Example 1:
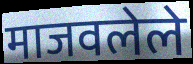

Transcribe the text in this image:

माजवलेले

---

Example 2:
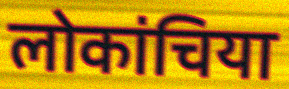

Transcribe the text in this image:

लोकांचिया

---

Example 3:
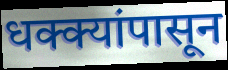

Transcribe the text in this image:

धक्क्यांपासून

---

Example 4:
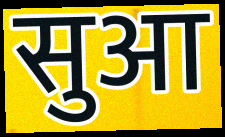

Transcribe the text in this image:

सुआ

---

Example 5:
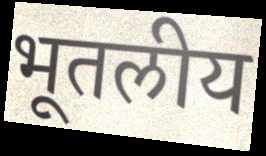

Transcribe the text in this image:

भूतलीय